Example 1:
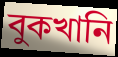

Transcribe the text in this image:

বুকখানি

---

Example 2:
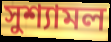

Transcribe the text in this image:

সুশ্যামল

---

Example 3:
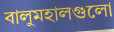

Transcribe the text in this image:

বালুমহালগুলো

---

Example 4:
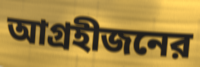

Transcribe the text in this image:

আগ্রহীজনের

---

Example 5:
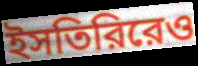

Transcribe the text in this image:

ইসতিরিরেও